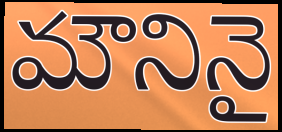
మౌనినై